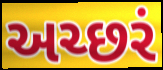
અચ્છરં